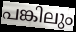
പങ്കിലും